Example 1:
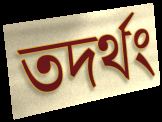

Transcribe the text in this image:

তদর্থং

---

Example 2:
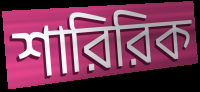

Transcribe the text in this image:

শারিরিক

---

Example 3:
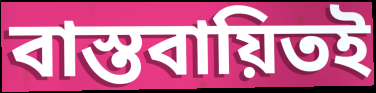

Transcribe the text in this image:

বাস্তবায়িতই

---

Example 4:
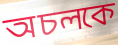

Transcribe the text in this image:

অচলকে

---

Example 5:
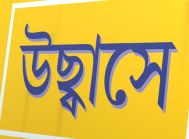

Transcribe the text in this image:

উছ্বাসে